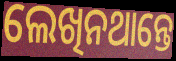
ଲେଖିନଥାନ୍ତେ